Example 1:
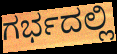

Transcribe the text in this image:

ಗರ್ಭದಲ್ಲಿ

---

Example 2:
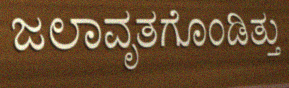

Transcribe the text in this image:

ಜಲಾವೃತಗೊಂಡಿತ್ತು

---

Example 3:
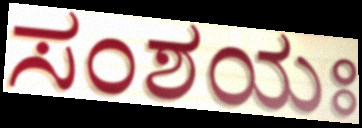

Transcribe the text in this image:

ಸಂಶಯಃ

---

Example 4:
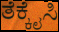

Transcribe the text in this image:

ತೆಕ್ಕೈಸಿ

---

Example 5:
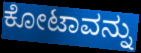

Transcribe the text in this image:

ಕೋಟಾವನ್ನು